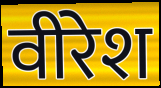
वीरेश